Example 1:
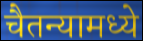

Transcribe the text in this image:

चैतन्यामध्ये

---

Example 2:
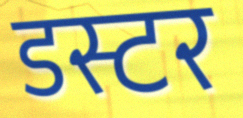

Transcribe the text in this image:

डस्टर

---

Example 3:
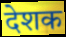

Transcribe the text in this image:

देशक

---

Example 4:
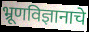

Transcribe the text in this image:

भ्रूणविज्ञानाचे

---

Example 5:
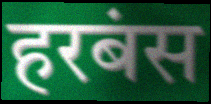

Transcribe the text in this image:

हरबंस